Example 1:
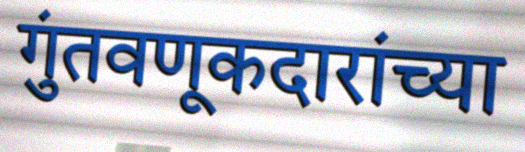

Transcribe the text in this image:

गुंतवणूकदारांच्या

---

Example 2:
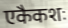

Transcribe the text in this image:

एकैकशः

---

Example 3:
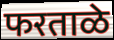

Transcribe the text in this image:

फरताळे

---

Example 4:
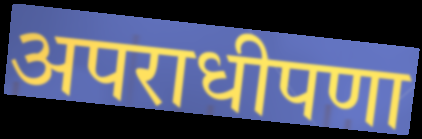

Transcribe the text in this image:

अपराधीपणा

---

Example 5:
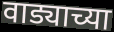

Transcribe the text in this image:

वाड्याच्या